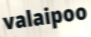
valaipoo